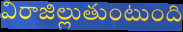
విరాజిల్లుతుంటుంది